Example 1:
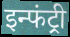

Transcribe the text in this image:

इन्फंट्री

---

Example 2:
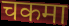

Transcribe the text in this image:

चकमा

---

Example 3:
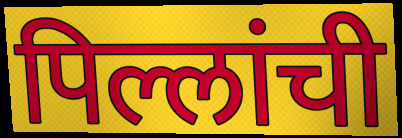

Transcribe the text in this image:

पिल्लांची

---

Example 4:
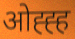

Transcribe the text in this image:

ओह्ह्ह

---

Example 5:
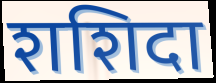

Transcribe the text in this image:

शशिदा